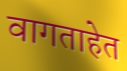
वागताहेत